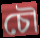
চৌ